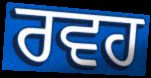
ਰਵਹ